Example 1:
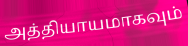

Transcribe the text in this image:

அத்தியாயமாகவும்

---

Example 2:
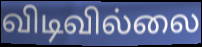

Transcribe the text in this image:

விடிவில்லை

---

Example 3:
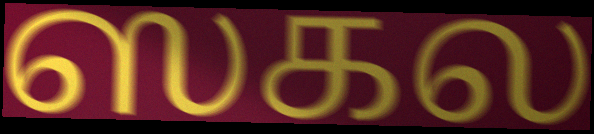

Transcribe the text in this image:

ஸகல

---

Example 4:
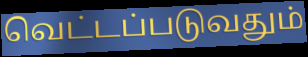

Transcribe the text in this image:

வெட்டப்படுவதும்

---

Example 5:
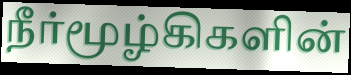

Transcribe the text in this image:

நீர்மூழ்கிகளின்